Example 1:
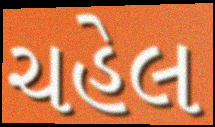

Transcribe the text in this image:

ચહેલ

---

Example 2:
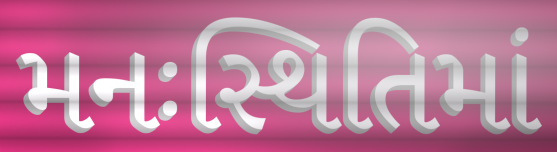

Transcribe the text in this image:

મનઃસ્થિતિમાં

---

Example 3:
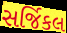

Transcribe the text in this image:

સર્જિકલ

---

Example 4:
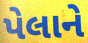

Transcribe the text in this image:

પેલાને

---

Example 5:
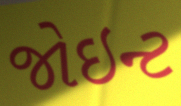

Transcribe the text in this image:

જોઇન્ટ